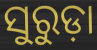
ସୁରୁଡ଼ା